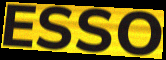
ESSO